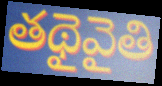
తథైవైతి